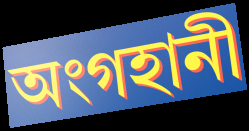
অংগহানী